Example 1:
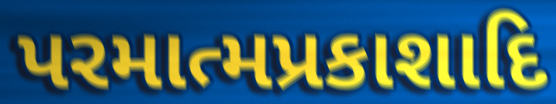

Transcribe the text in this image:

પરમાત્મપ્રકાશાદિ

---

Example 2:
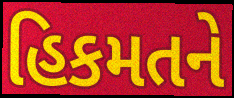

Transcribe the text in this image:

હિકમતને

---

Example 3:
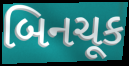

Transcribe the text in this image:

બિનચૂક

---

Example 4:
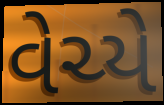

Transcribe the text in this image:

વેચ્યે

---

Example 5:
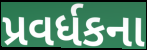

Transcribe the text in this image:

પ્રવર્ધકના